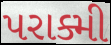
પરાક્મી